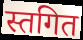
स्तगित